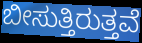
ಬೀಸುತ್ತಿರುತ್ತವೆ